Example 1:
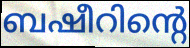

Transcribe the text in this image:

ബഷീറിന്റെ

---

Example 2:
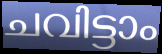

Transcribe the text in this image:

ചവിട്ടാം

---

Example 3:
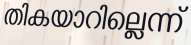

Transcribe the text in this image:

തികയാറില്ലെന്ന്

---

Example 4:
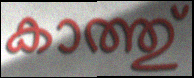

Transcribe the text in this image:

കാത്തു്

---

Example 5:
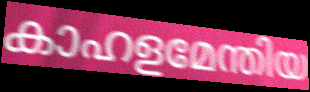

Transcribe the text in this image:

കാഹളമേന്തിയ